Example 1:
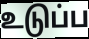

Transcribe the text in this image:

உடுப்ப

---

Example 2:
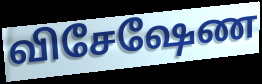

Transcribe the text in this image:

விசேஷேண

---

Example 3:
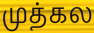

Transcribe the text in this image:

முத்கல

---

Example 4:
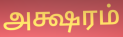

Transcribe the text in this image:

அக்ஷரம்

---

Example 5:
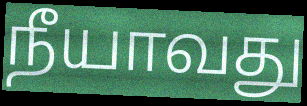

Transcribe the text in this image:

நீயாவது